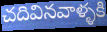
చదివినవాళ్ళకి